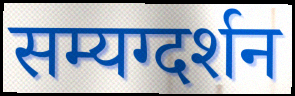
सम्यग्दर्शन